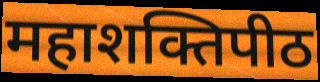
महाशक्तिपीठ